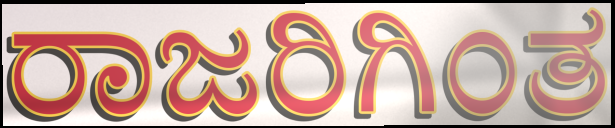
ರಾಜರಿಗಿಂತ